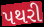
પથરી